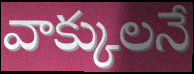
వాక్కులనే